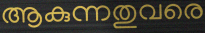
ആകുന്നതുവരെ